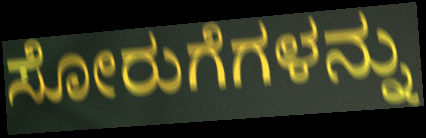
ಸೋರುಗೆಗಳನ್ನು